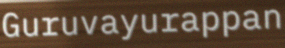
Guruvayurappan